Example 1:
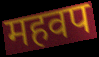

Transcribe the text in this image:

महवप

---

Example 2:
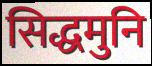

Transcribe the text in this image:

सिद्धमुनि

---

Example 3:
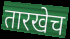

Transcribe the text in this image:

तारखेच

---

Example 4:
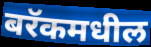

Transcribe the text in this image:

बरॅकमधील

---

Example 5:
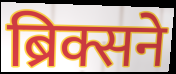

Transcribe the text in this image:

ब्रिक्सने